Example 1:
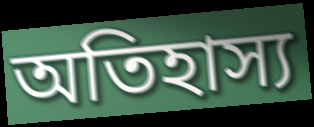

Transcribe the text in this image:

অতিহাস্য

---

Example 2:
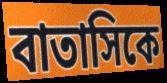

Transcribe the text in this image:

বাতাসিকে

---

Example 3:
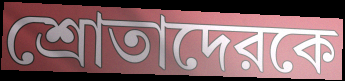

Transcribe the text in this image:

শ্রোতাদেরকে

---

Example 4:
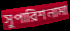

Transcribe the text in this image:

সুপারিশনামা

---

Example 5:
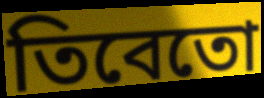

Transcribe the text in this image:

তিবেতো